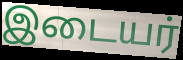
இடையர்